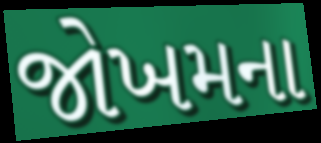
જોખમના